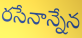
రసేనాన్నేన